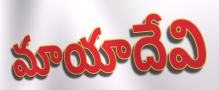
మాయాదేవి